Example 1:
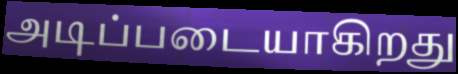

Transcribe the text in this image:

அடிப்படையாகிறது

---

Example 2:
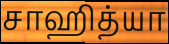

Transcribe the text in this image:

சாஹித்யா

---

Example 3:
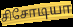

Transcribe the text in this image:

சிசோடியா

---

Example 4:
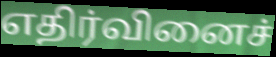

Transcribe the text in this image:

எதிர்வினைச்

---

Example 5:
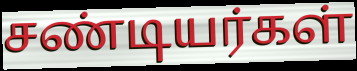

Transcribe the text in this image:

சண்டியர்கள்